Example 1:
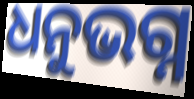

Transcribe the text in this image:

ଧନୁଭଗ୍ନ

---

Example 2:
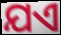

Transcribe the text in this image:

ଯଏ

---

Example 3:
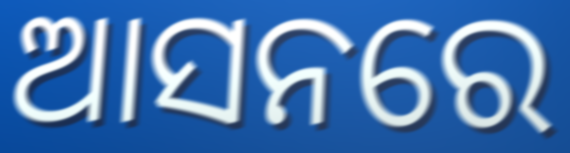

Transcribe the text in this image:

ଆସନରେ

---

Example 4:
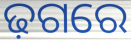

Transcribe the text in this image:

ଢ଼ଗରେ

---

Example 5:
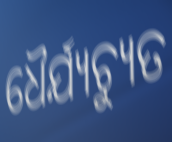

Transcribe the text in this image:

ଧୈର୍ଯ୍ୟଚ୍ୟୁତ